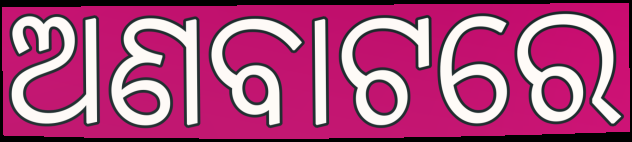
ଅଣବାଟରେ